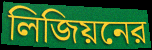
লিজিয়নের